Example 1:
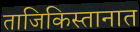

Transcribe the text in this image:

ताजिकिस्तानात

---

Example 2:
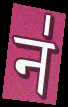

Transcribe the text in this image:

न॑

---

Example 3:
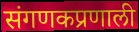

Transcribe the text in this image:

संगणकप्रणाली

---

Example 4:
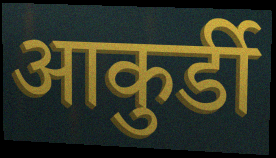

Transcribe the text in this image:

आकुर्डी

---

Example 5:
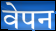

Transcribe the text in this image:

वेपन